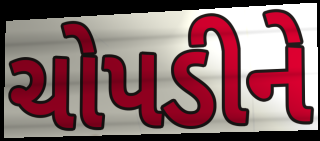
ચોપડીને